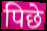
पिछे